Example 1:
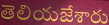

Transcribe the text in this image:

తెలియజేశారు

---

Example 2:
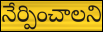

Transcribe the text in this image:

నేర్పించాలని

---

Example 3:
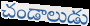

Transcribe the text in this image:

చండాలుడు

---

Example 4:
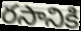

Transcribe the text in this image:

రసానికి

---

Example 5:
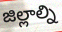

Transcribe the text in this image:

జిల్లాల్ని